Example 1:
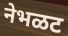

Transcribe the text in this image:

नेभळट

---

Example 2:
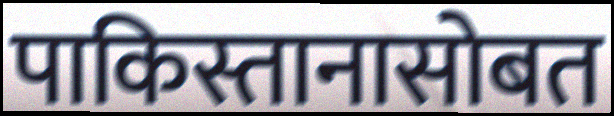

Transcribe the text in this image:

पाकिस्तानासोबत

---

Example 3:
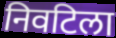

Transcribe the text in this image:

निवटिला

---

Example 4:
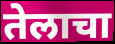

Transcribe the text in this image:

तेलाचा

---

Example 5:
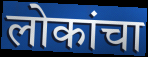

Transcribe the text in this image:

लोकांचा